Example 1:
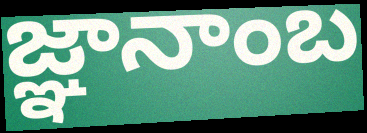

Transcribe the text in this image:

జ్ఞానాంబ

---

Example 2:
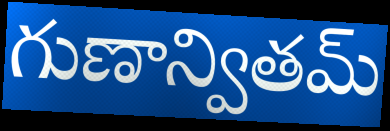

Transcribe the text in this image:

గుణాన్వితమ్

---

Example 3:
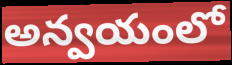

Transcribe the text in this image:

అన్వయంలో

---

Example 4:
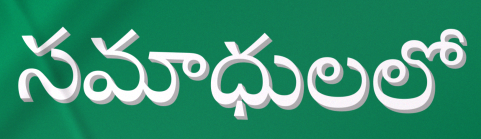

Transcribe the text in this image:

సమాధులలో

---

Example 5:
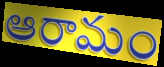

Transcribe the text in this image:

ఆరామం